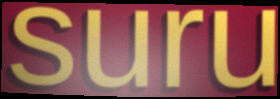
suru